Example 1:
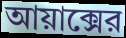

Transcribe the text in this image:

আয়াক্সের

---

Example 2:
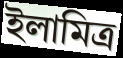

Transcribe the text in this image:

ইলামিত্র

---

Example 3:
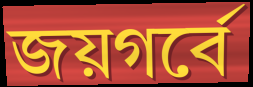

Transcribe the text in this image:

জয়গর্বে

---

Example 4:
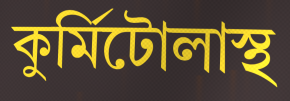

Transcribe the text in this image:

কুর্মিটোলাস্থ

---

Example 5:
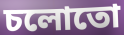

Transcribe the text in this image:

চলোতো